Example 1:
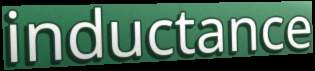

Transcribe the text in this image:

inductance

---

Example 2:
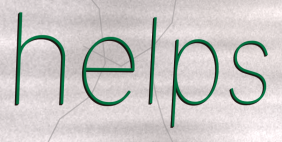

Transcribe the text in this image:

helps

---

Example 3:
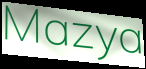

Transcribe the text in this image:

Mazya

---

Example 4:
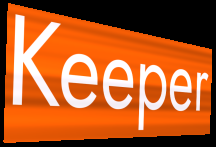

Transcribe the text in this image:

Keeper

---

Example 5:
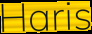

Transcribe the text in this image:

Haris